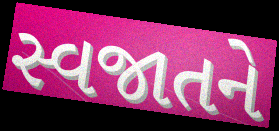
સ્વજાતને